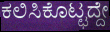
ಕಲಿಸಿಕೊಟ್ಟದ್ದೇ